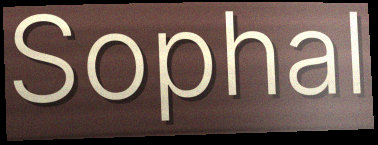
Sophal